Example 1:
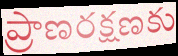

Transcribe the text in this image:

ప్రాణరక్షణకు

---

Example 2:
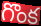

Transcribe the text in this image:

గొంక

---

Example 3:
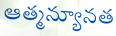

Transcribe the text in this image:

ఆత్మన్యూనత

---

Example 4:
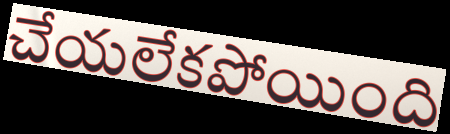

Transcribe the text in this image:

చేయలేకపోయింది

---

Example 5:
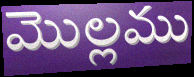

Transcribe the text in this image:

మొల్లము